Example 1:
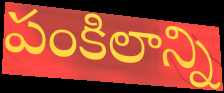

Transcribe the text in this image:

పంకిలాన్ని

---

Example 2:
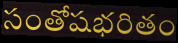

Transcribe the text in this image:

సంతోషభరితం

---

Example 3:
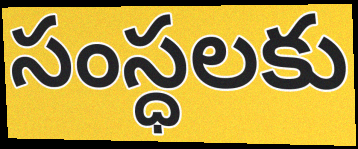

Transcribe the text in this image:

సంస్ధలకు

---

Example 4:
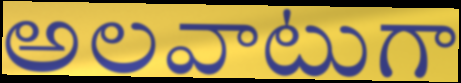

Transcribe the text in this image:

అలవాటుగా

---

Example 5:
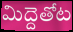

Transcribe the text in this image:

మిద్దెతోట